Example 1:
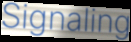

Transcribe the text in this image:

Signaling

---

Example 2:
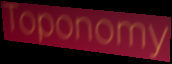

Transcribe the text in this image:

Toponomy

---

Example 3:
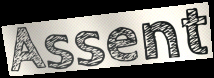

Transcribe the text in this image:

Assent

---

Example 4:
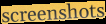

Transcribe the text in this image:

screenshots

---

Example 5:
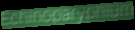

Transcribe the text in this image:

Echinoparyphium